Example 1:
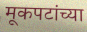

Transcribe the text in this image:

मूकपटांच्या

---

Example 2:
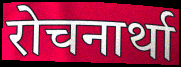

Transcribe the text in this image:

रोचनार्था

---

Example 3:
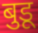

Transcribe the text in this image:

बुडू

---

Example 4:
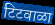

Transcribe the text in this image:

टिटवाळा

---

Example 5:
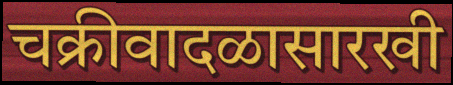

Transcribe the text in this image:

चक्रीवादळासारखी